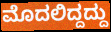
ಮೊದಲಿದ್ದದ್ದು